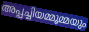
അപ്പച്ചിയമ്മൂമ്മയും